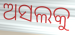
ଅସଲକୁ